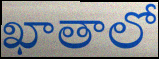
ఖాతాలో